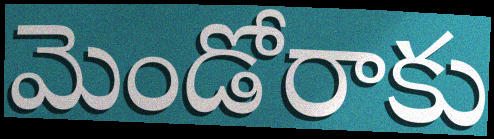
మెండోరాకు